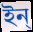
ইন্